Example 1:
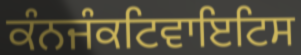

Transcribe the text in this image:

ਕੰਨਜੰਕਟਿਵਾਇਟਿਸ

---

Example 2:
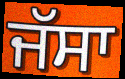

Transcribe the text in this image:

ਜੱਸਾ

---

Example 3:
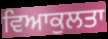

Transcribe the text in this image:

ਵਿਆਕੁਲਤਾ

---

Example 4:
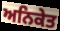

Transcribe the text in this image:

ਅਨਿਕੇਤ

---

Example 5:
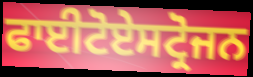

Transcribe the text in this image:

ਫਾਈਟੋਏਸਟ੍ਰੋਜਨ